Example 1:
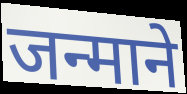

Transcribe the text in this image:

जन्माने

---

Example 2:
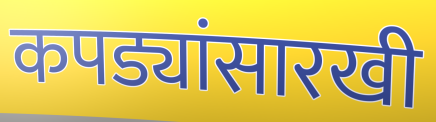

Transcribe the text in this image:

कपड्यांसारखी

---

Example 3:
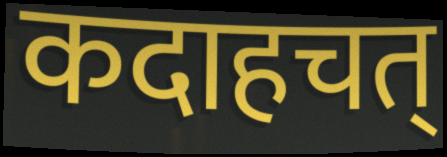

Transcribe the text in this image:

कदाहचत्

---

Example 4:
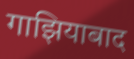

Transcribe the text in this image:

गाझियाबाद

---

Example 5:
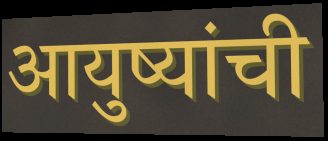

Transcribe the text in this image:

आयुष्यांची